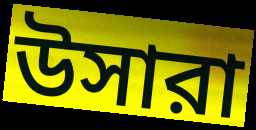
উসারা